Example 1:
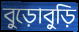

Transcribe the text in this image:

বুড়োবুড়ি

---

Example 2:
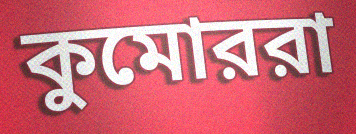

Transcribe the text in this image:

কুমোররা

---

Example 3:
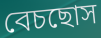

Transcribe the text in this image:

বেচছোস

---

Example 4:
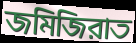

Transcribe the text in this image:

জমিজিরাত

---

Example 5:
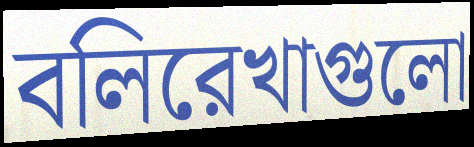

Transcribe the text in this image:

বলিরেখাগুলো